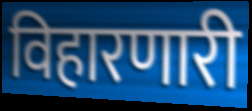
विहारणारी